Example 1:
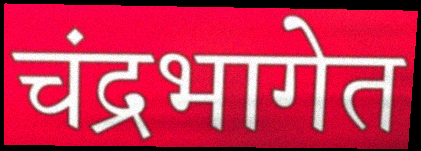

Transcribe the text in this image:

चंद्रभागेत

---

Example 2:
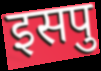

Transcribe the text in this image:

इसपु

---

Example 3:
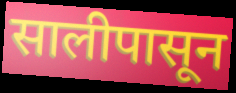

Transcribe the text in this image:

सालीपासून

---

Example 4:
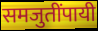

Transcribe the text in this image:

समजुतींपायी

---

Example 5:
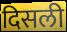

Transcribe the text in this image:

दिसली